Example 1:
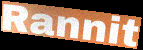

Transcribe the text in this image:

Rannit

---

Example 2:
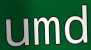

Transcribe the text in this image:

umd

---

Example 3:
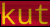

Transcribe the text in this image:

kut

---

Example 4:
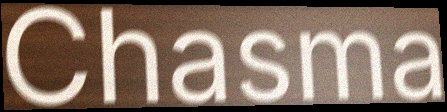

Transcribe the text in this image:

Chasma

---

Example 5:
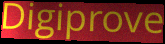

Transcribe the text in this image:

Digiprove